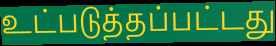
உட்படுத்தப்பட்டது